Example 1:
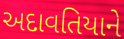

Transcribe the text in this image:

અદાવતિયાને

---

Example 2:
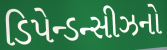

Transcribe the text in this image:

ડિપેન્ડન્સીઝનો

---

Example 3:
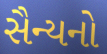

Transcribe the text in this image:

સૈન્યનો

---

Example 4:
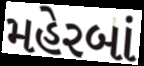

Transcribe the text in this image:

મહેરબાં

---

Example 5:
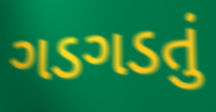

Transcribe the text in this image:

ગડગડતું